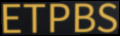
ETPBS